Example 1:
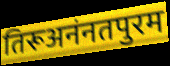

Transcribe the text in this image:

तिरूअनंनतपुरम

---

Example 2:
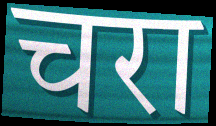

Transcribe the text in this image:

चरा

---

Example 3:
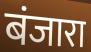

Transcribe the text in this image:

बंजारा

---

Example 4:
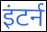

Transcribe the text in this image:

इंटर्न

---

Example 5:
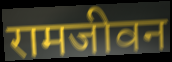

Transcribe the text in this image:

रामजीवन